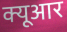
क्यूआर